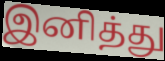
இனித்து